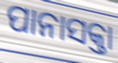
ପାନାସକ୍ତା